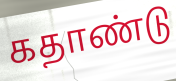
கதாண்டு